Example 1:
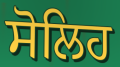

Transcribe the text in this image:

ਸੋਲਿਹ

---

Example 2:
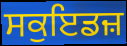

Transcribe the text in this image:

ਸਕੁਇਡਜ਼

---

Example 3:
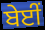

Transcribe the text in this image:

ਬੇਈਂ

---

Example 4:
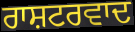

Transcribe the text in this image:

ਰਾਸ਼ਟਰਵਾਦ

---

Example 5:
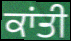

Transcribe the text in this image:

ਕਾਂਤੀ